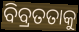
ବିବ୍ରତତାକୁ